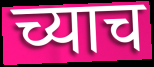
च्याच